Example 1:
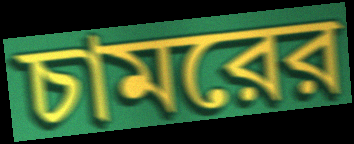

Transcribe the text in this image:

চামরের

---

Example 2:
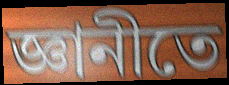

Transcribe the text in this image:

জ্ঞানীতে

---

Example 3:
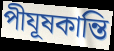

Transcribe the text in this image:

পীযূষকান্তি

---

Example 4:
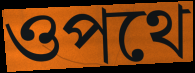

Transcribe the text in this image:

ওপথে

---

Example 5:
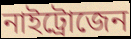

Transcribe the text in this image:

নাইট্রোজেন